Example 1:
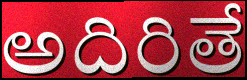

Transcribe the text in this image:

అదిరితే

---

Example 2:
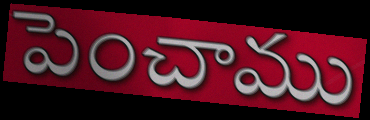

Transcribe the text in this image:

పెంచాము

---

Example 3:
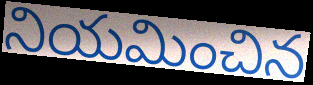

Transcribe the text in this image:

నియమించిన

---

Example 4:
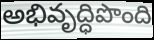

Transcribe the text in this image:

అభివృద్ధిపొంది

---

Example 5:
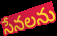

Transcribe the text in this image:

సేనలను